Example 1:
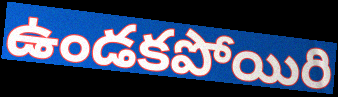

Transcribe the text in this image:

ఉండకపోయిరి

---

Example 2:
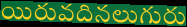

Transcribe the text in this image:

యిరువదినలుగురు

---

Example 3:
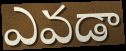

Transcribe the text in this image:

ఎవడా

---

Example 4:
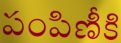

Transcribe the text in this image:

పంపిణీకి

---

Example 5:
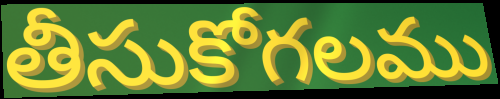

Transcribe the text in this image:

తీసుకోగలము